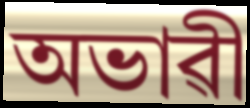
অভাৱী